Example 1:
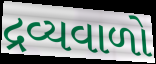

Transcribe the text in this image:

દ્રવ્યવાળો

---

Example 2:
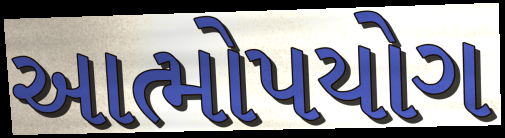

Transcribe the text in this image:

આત્મોપયોગ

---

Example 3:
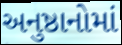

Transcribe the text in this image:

અનુષ્ઠાનોમાં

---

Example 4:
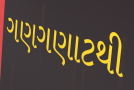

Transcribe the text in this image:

ગણગણાટથી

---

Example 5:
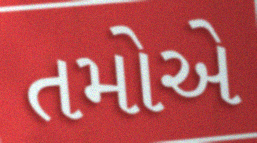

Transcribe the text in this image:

તમોએ